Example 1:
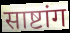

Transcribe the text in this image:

साष्टांग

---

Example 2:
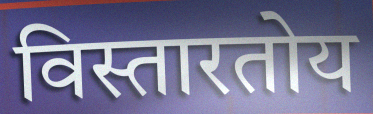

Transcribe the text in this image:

विस्तारतोय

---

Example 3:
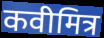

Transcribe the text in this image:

कवीमित्र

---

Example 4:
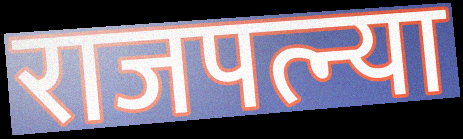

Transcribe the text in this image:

राजपत्न्या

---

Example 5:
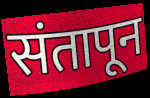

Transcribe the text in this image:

संतापून